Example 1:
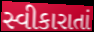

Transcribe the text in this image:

સ્વીકારાતાં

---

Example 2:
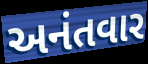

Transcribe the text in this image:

અનંતવાર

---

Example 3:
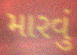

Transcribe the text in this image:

મારવું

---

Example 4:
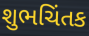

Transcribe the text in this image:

શુભચિંતક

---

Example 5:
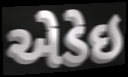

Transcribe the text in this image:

એડેઇ